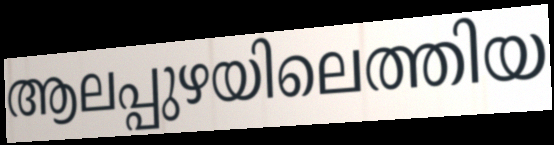
ആലപ്പുഴയിലെത്തിയ